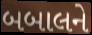
બબાલને